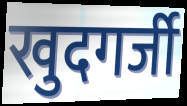
खुदगर्जी